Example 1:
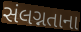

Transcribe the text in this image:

સંલગ્નતાના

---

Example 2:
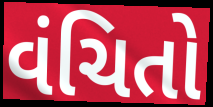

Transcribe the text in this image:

વંચિતો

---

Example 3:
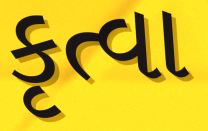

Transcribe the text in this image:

કૃત્વા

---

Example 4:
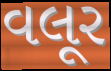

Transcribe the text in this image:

વલૂર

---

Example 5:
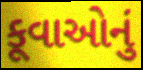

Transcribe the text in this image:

કૂવાઓનું